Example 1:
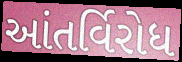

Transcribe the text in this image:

આંતર્વિરોધ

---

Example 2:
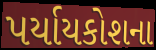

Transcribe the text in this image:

પર્યાયકોશના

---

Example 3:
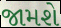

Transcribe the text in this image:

જામશે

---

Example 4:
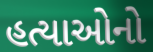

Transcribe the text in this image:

હત્યાઓનો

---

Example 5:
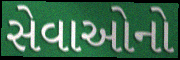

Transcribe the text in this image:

સેવાઓનો